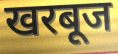
खरबूज